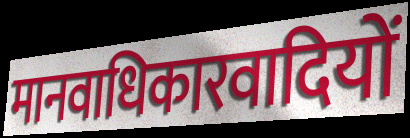
मानवाधिकारवादियों